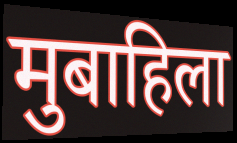
मुबाहिला